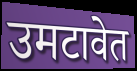
उमटावेत